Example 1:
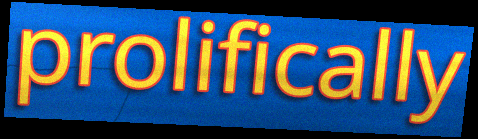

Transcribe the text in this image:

prolifically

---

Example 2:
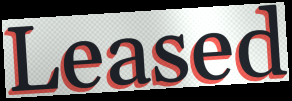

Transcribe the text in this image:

Leased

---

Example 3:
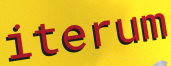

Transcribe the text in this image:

iterum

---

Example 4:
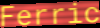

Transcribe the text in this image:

Ferric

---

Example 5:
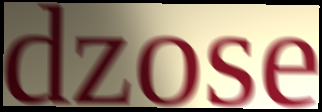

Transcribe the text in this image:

dzose